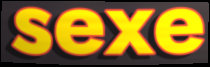
sexe